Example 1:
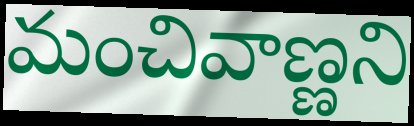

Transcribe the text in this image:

మంచివాణ్ణని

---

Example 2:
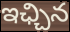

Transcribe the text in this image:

ఇఛ్చిన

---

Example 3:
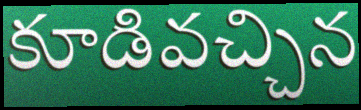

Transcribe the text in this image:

కూడివచ్చిన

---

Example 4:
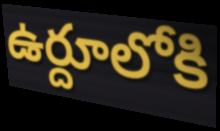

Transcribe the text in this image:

ఉర్దూలోకి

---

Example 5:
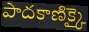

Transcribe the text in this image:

పాదకాణిక్కై